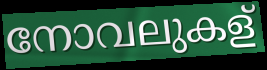
നോവലുകള്